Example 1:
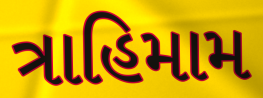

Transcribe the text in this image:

ત્રાહિમામ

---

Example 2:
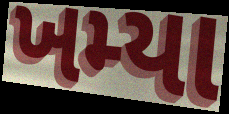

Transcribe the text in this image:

ખમ્યા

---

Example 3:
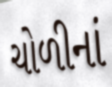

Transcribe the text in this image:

ચોળીનાં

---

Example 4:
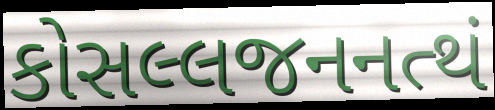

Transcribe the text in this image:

કોસલ્લજનનત્થં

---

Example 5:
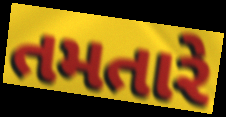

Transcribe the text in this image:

તમતારે